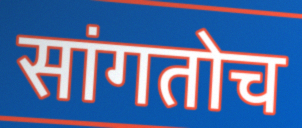
सांगतोच